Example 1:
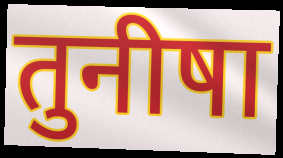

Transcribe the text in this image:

तुनीषा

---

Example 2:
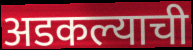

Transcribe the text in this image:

अडकल्याची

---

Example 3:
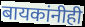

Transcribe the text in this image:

बायकांनीही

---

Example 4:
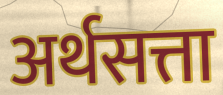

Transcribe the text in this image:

अर्थसत्ता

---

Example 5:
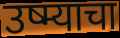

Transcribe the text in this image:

उष्म्याचा